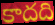
కాదది